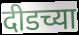
दीडच्या